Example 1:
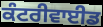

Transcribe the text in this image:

ਕੰਟਰੀਵਾਈਡ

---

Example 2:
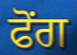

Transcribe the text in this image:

ਫੋਂਗ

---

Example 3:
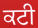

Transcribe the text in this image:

ਕਟੀ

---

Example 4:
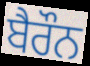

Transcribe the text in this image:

ਬੈਰੌਨ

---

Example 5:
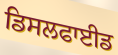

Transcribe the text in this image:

ਡਿਸਲਫਾਈਡ